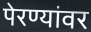
पेरण्यांवर